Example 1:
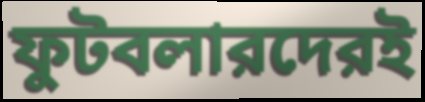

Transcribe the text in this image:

ফুটবলারদেরই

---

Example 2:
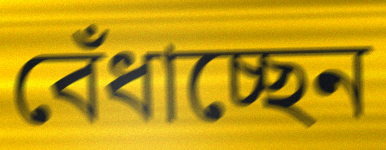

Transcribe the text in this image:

বেঁধাচ্ছেন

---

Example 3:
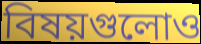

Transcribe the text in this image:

বিষয়গুলোও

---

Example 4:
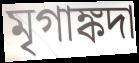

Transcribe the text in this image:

মৃগাঙ্কদা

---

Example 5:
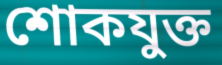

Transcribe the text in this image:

শোকযুক্ত